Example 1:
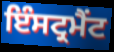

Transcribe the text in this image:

ਇੰਸਟ੍ਰਮੈਂਟ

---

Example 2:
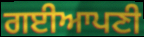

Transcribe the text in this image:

ਗਈਆਪਣੀ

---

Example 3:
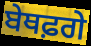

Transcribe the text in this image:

ਬੇਥਫ਼ਗੇ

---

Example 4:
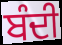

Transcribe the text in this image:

ਬੰਦੀ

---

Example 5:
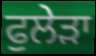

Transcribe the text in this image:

ਫੁਲੇੜਾ